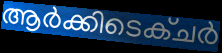
ആർക്കിടെക്ചർ